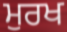
ਮੁਰਖ